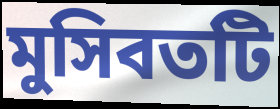
মুসিবতটি